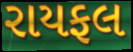
રાયફલ